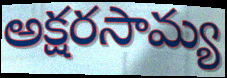
అక్షరసామ్య